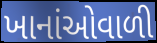
ખાનાંઓવાળી